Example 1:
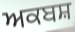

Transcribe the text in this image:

ਅਕਬਸ਼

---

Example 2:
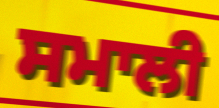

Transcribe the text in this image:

ਸਮਾਲੀ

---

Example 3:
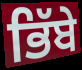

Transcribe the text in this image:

ਭਿੱਬੇ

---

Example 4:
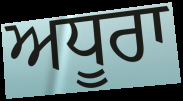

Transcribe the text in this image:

ਅਧੂਰਾ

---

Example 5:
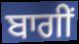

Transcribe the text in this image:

ਬਾਗੀਂ